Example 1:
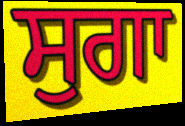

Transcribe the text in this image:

ਸੁਗਾ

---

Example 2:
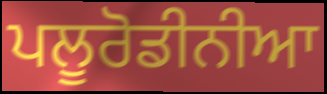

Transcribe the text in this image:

ਪਲੂਰੋਡੀਨੀਆ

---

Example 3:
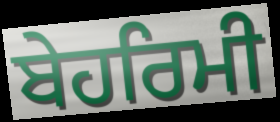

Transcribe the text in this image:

ਬੇਹਰਿਮੀ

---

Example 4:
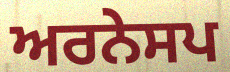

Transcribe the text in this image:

ਅਰਨੇਸਪ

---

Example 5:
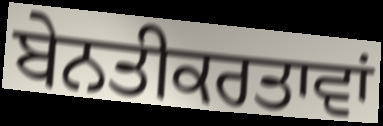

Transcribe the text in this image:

ਬੇਨਤੀਕਰਤਾਵਾਂ